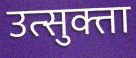
उत्सुक्ता